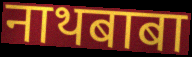
नाथबाबा